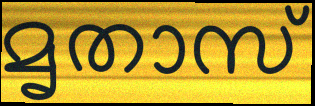
മൃതാസ്